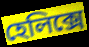
হেলিক্সে